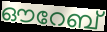
ഔറേബ്